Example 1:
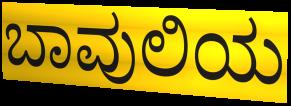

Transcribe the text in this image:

ಬಾವುಲಿಯ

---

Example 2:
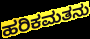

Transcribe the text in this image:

ಹರಿಕಮತನು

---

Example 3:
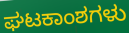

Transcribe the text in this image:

ಘಟಕಾಂಶಗಳು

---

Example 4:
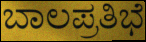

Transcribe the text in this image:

ಬಾಲಪ್ರತಿಭೆ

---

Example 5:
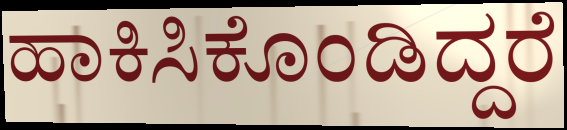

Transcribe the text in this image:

ಹಾಕಿಸಿಕೊಂಡಿದ್ದರೆ